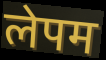
लेपम